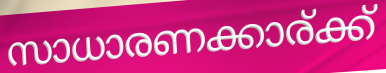
സാധാരണക്കാര്ക്ക്